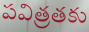
పవిత్రతకు